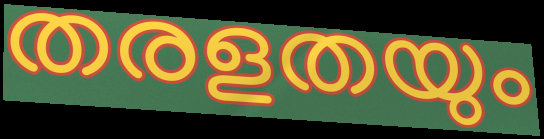
തരളതയും